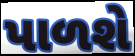
પાળશે